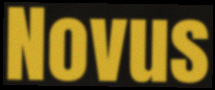
Novus